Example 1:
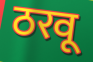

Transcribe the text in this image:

ठरवू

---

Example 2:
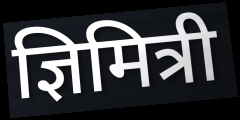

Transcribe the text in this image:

ज्ञिमित्री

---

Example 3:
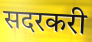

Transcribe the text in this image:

सदरकरी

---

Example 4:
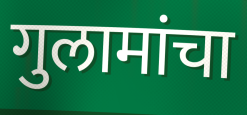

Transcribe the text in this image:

गुलामांचा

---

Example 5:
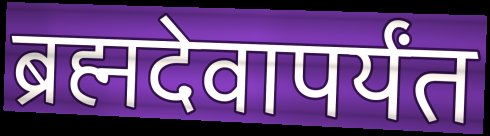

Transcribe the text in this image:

ब्रह्मदेवापर्यंत